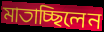
মাতাচ্ছিলেন